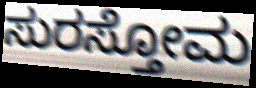
ಸುರಸ್ತೋಮ